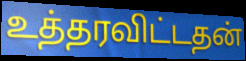
உத்தரவிட்டதன்